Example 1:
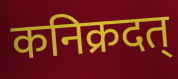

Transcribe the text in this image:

कनिक्रदत्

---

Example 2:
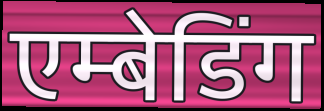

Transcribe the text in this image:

एम्बेडिंग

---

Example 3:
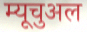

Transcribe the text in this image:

म्यूचुअल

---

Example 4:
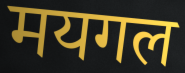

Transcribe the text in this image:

मयगल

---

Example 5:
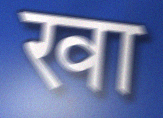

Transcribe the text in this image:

खा